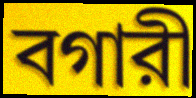
বগারী